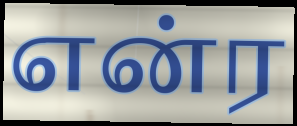
என்ர